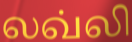
லவ்லி